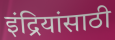
इंद्रियांसाठी